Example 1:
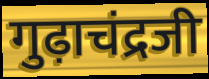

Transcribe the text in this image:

गुढ़ाचंद्रजी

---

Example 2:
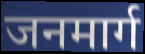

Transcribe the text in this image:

जनमार्ग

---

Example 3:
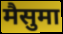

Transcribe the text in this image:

मैसुमा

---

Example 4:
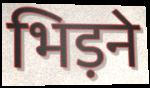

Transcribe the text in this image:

भिड़ने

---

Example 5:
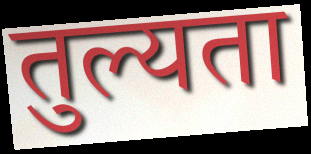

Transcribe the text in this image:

तुल्यता